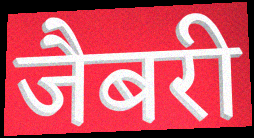
जैबरी